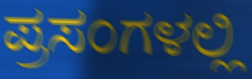
ಪ್ರಸಂಗಳಲ್ಲಿ